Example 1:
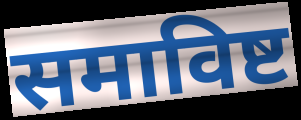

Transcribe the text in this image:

समाविष्ट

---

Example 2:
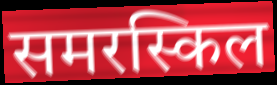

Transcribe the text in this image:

समरस्किल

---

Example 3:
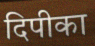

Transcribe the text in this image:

दिपीका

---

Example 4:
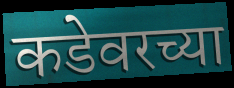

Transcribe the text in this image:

कडेवरच्या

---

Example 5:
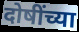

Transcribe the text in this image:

दोषींच्या